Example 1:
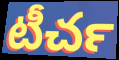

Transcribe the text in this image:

టీచర్‍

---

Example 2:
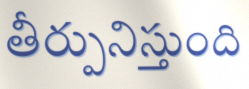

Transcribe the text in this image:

తీర్పునిస్తుంది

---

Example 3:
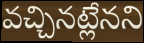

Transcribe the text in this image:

వచ్చినట్లేనని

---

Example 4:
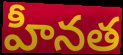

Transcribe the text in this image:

హీనత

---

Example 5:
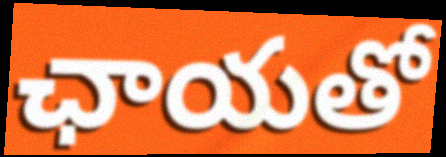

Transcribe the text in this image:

ఛాయతో